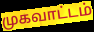
முகவாட்டம்